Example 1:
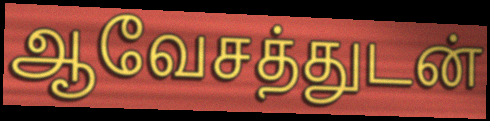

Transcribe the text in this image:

ஆவேசத்துடன்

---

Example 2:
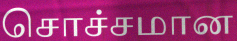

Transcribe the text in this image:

சொச்சமான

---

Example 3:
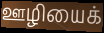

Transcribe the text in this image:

ஊழியைக்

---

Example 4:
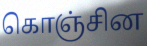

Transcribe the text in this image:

கொஞ்சின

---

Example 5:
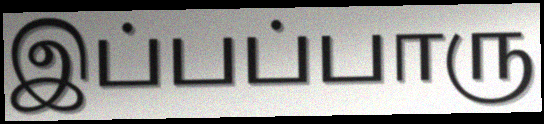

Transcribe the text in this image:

இப்பப்பாரு